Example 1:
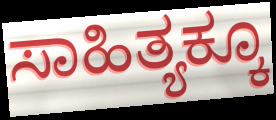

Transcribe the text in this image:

ಸಾಹಿತ್ಯಕ್ಕೂ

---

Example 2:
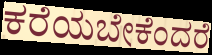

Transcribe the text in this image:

ಕರೆಯಬೇಕೆಂದರೆ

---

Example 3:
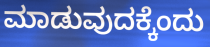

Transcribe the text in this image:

ಮಾಡುವುದಕ್ಕೆಂದು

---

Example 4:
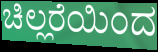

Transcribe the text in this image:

ಚಿಲ್ಲರೆಯಿಂದ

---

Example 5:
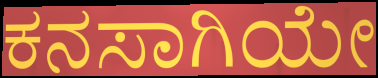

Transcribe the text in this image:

ಕನಸಾಗಿಯೇ